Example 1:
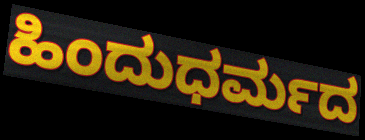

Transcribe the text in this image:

ಹಿಂದುಧರ್ಮದ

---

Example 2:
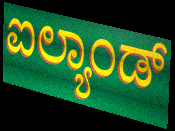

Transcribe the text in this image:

ಐಲ್ಯಾಂಡ್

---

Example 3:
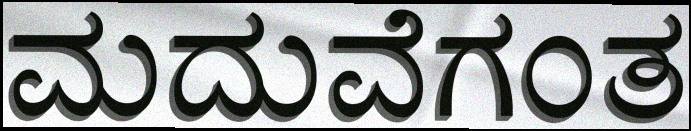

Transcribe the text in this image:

ಮದುವೆಗಂತ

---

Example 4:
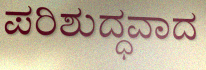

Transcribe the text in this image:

ಪರಿಶುದ್ಧವಾದ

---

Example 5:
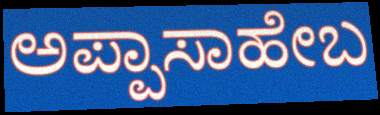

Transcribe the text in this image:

ಅಪ್ಪಾಸಾಹೇಬ